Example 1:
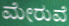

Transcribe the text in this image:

ಮೇರುವೆ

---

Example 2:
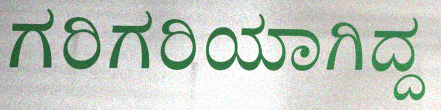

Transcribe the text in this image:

ಗರಿಗರಿಯಾಗಿದ್ದ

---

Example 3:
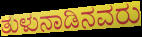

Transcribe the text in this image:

ತುಳುನಾಡಿನವರು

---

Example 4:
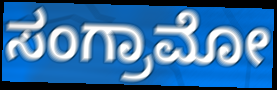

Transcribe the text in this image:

ಸಂಗ್ರಾಮೋ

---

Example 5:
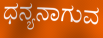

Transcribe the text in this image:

ಧನ್ಯನಾಗುವ